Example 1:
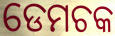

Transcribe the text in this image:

ଡେମଚକ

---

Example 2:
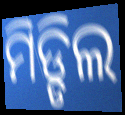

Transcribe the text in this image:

ମିଡ୍ଡିଲ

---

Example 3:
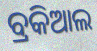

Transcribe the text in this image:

ବ୍ରକିଆଲ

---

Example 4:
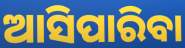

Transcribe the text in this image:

ଆସିପାରିବା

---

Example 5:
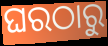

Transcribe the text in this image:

ଘରଠାରୁ